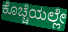
ಕೊಚ್ಚೆಯಲ್ಲೇ